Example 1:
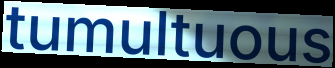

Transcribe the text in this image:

tumultuous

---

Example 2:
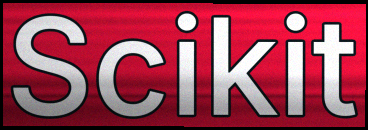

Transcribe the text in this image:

Scikit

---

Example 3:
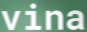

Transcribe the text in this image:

vina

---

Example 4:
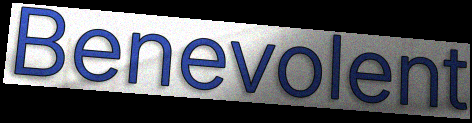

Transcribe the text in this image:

Benevolent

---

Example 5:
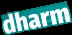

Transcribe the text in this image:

dharm